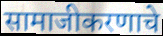
सामाजीकरणाचे